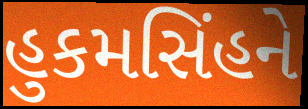
હુકમસિંહને